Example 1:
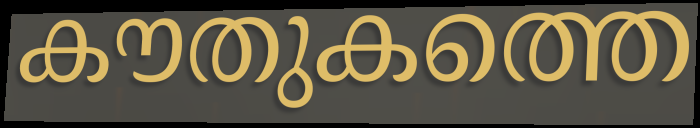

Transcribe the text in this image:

കൗതുകത്തെ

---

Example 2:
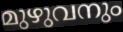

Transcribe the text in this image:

മുഴുവനും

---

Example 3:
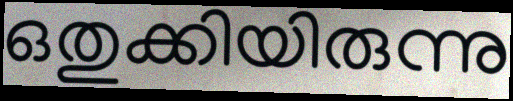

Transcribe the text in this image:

ഒതുക്കിയിരുന്നു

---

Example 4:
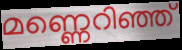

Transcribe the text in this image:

മണ്ണെറിഞ്ഞ്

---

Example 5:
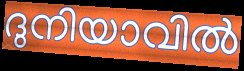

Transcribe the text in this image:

ദുനിയാവിൽ